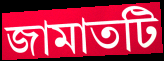
জামাতটি